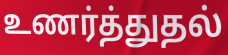
உணர்த்துதல்